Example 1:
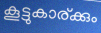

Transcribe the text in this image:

കൂട്ടുകാര്ക്കും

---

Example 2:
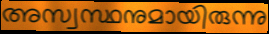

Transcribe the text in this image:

അസ്വസ്ഥനുമായിരുന്നു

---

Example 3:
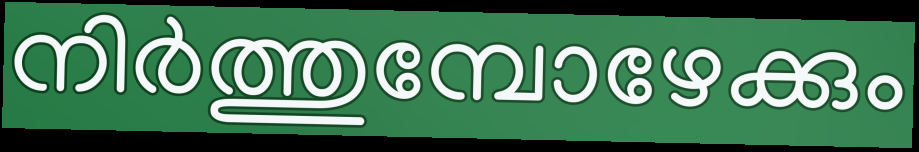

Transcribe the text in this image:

നിർത്തുമ്പോഴേക്കും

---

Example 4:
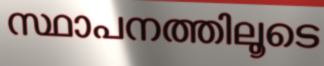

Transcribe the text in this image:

സ്ഥാപനത്തിലൂടെ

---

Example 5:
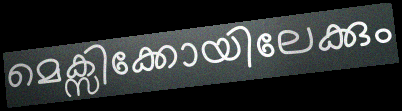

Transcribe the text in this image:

മെക്സിക്കോയിലേക്കും